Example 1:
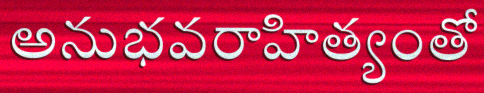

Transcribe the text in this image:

అనుభవరాహిత్యంతో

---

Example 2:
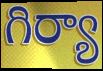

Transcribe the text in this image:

గిర్యా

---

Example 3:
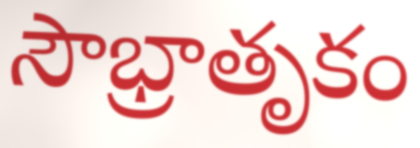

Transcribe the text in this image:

సౌభ్రాతృకం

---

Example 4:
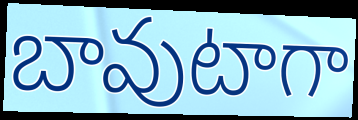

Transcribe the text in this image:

బావుటాగా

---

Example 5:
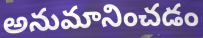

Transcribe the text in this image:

అనుమానించడం